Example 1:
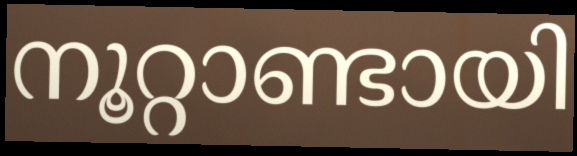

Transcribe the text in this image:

നൂറ്റാണ്ടായി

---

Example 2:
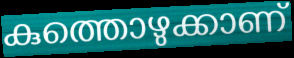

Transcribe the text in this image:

കുത്തൊഴുക്കാണ്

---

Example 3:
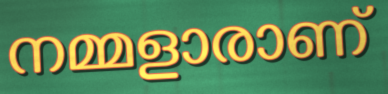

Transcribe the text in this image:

നമ്മളാരാണ്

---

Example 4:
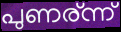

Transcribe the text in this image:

പുണര്ന്ന്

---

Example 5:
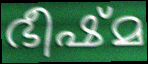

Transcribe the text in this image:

ഭീഷ്മ